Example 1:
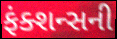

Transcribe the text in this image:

ફંક્શન્સની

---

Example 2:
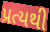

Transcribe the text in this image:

પ્રત્યથી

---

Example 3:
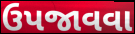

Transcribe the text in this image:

ઉપજાવવા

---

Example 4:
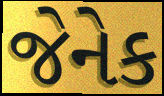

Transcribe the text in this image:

જેનેક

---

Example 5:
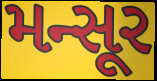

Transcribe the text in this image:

મન્સૂર